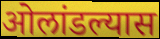
ओलांडल्यास